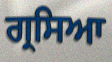
ਗ੍ਰਸਿਆ